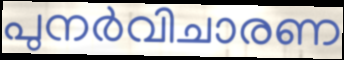
പുനർവിചാരണ